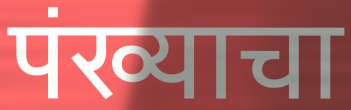
पंख्याचा